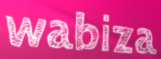
wabiza